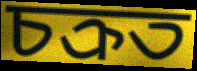
চক্ৰত